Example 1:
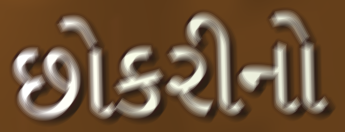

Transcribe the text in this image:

છોકરીનો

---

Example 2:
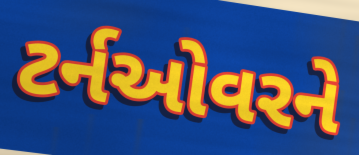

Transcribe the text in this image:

ટર્નઓવરને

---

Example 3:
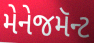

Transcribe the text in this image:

મેનેજમૅન્ટ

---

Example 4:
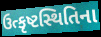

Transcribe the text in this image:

ઉત્કૃષ્ટસ્થિતિના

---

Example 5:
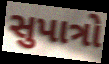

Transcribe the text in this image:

સુપાત્રો